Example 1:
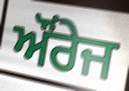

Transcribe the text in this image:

ਔਂਰੇਜ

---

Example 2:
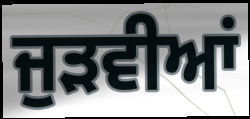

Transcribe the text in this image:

ਜੁੜਵੀਆਂ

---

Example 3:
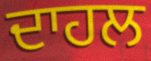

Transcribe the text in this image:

ਦਾਹਲ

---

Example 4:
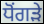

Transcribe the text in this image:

ਧੋਂਗੜੇ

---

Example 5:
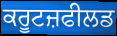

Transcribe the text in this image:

ਕਰੂਟਜ਼ਫੀਲਡ